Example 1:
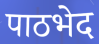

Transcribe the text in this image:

पाठभेद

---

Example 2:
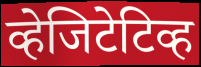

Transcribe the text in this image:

व्हेजिटेटिव्ह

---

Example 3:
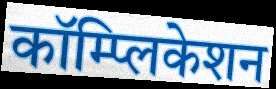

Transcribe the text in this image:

कॉम्प्लिकेशन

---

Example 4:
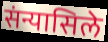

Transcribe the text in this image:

संन्यासिले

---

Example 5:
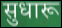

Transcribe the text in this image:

सुधारू